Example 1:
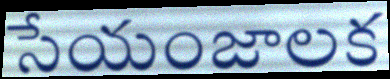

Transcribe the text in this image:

సేయంజాలక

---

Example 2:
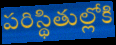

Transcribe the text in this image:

పరిస్థితుల్లోకి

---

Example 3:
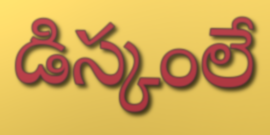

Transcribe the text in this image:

డిస్కంలే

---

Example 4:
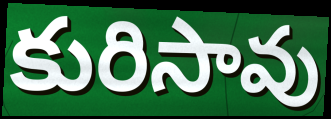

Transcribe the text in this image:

కురిసావు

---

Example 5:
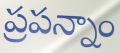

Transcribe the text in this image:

ప్రపన్నాం